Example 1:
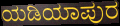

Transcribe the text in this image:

ಯಡಿಯಾಪುರ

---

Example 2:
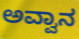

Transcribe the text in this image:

ಅವ್ವಾನ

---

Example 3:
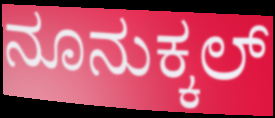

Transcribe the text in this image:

ನೂನುಕ್ಕಲ್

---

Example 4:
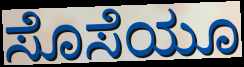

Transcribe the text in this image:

ಸೊಸೆಯೂ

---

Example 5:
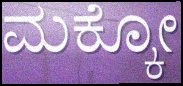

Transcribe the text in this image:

ಮಕ್ಕೋ